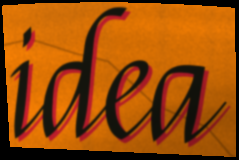
idea